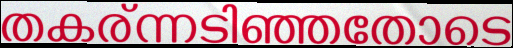
തകര്ന്നടിഞ്ഞതോടെ